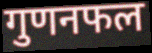
गुणनफल